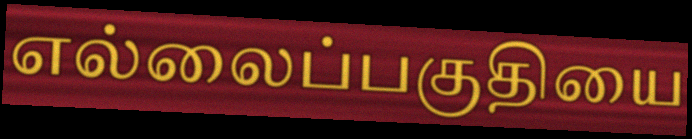
எல்லைப்பகுதியை